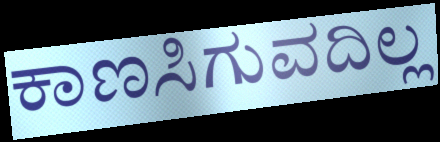
ಕಾಣಸಿಗುವದಿಲ್ಲ